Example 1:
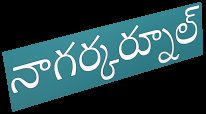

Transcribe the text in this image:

నాగర్కర్నూల్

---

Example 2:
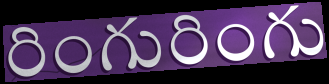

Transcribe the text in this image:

రింగురింగు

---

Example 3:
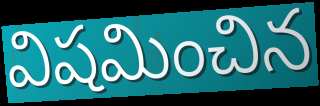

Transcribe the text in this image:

విషమించిన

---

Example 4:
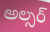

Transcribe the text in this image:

అల్సర్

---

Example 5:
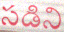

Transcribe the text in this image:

సడిని